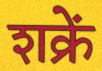
शक्रें